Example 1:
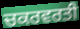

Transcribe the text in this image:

ਚਕਰਵਰਤੀ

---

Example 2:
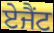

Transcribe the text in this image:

ਏਜੈਂਟ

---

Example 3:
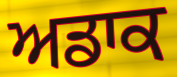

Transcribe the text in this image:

ਅਡਾਕ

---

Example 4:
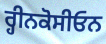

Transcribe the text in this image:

ਰ੍ਹੀਨਕੋਸੀਓਨ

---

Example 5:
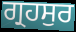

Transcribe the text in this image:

ਗ੍ਰਹਸੁਰ